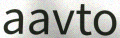
aavto